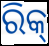
ରିକ୍